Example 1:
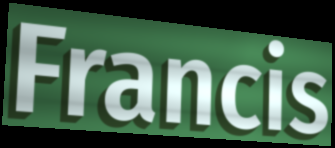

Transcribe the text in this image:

Francis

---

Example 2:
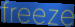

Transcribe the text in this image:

freeze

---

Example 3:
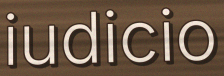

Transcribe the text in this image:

iudicio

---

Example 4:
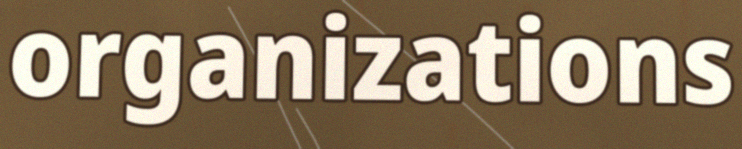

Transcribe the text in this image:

organizations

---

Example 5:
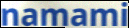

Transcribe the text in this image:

namami